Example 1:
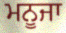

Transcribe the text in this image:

ਮਨੂਜਾ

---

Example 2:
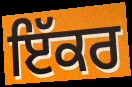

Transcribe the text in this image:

ਇੱਕਰ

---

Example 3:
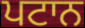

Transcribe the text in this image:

ਪਟਾਨ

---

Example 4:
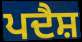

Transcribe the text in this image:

ਪਦੈਸ਼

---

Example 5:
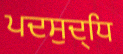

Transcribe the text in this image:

ਪਦਸੁਦ੍ਧਿ